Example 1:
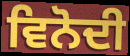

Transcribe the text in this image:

ਵਿਨੋਦੀ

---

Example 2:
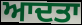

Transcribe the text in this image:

ਆਦਤਾ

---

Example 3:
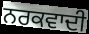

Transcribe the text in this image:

ਨਰਕਵਾਦੀ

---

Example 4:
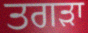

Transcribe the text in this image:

ਤਗੜਾ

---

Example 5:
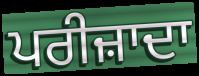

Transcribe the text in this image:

ਪਰੀਜ਼ਾਦਾ